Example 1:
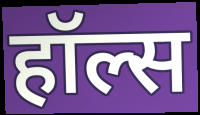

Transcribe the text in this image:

हॉल्स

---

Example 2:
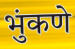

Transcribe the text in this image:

भुंकणे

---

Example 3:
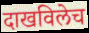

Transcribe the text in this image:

दाखविलेच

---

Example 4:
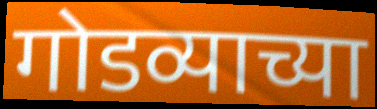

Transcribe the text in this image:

गोडव्याच्या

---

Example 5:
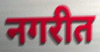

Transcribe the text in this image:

नगरीत